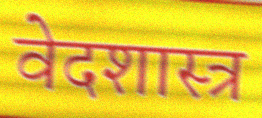
वेदशास्त्र